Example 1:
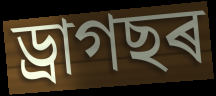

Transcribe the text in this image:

ড্ৰাগছৰ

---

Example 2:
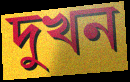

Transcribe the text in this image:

দুখন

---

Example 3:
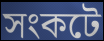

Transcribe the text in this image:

সংকটে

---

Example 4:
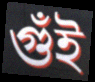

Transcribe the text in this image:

গুঁই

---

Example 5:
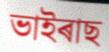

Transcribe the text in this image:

ভাইৰাছ